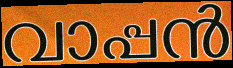
വാപ്പൻ